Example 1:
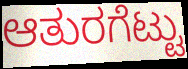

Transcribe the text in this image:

ಆತುರಗೆಟ್ಟು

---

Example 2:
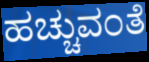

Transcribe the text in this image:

ಹಚ್ಚುವಂತೆ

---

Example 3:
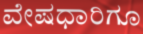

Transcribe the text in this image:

ವೇಷಧಾರಿಗೂ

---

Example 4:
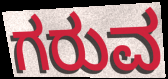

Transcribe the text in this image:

ಗರುವ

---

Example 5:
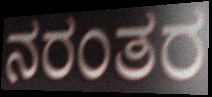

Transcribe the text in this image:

ನರಂತರ